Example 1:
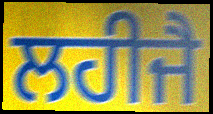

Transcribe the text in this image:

ਲਹੀਜੈ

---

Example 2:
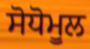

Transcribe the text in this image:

ਸੋਧੋਮੂਲ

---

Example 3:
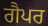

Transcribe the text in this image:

ਗੈਪਰ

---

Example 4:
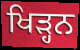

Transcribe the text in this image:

ਖਿੜ੍ਹਨ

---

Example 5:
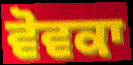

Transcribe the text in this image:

ਵੋਵਕਾ